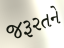
જરૂરતને